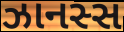
ઝાનસ્સ